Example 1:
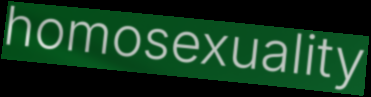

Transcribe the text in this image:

homosexuality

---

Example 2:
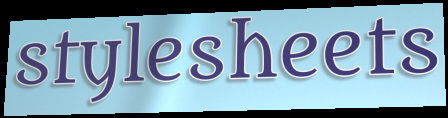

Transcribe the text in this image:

stylesheets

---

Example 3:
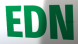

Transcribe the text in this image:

EDN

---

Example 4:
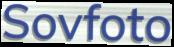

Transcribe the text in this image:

Sovfoto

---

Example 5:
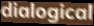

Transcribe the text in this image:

dialogical